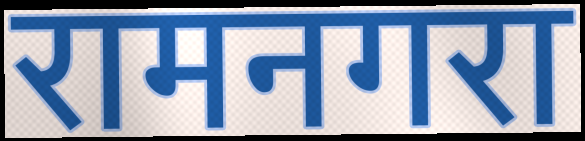
रामनगरा